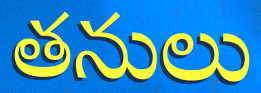
తనులు